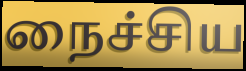
நைச்சிய